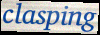
clasping